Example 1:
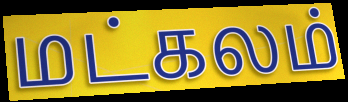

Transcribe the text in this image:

மட்கலம்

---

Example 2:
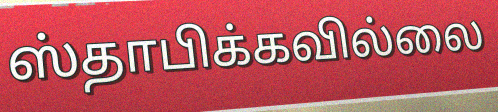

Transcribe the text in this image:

ஸ்தாபிக்கவில்லை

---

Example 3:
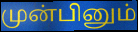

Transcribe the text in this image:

முன்பினும்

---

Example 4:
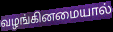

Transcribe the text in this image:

வழங்கினமையால்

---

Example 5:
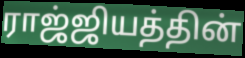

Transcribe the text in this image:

ராஜ்ஜியத்தின்